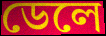
ডেলে